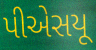
પીએસયૂ